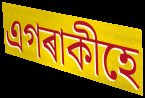
এগৰাকীহে